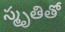
స్మృతితో